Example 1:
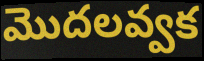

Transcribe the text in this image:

మొదలవ్వక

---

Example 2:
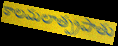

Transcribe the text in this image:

కాలమలాత్ప్రపాతు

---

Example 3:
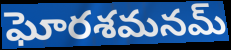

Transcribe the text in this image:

ఘోరశమనమ్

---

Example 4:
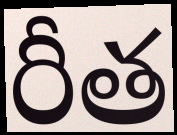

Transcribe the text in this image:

రీత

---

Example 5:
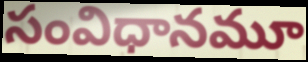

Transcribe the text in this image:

సంవిధానమూ